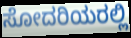
ಸೋದರಿಯರಲ್ಲಿ